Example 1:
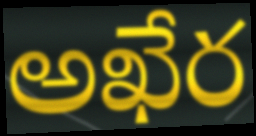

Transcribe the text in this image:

అఖేర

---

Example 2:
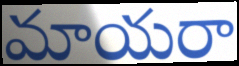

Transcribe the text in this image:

మాయరా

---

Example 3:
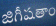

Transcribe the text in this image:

జిగీషతాం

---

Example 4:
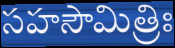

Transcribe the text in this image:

సహసౌమిత్రిః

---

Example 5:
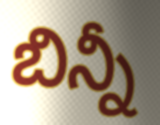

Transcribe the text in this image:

బిన్నీ